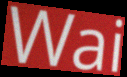
Wai